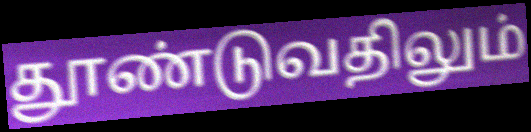
தூண்டுவதிலும்